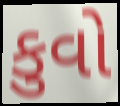
કુવો